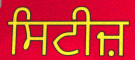
ਸਿਟੀਜ਼